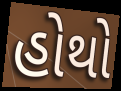
હોથો